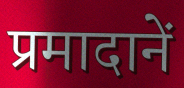
प्रमादानें